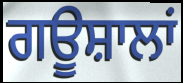
ਗਊਸ਼ਾਲਾਂ